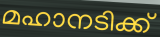
മഹാനടിക്ക്